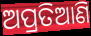
ଅପ୍ରତିଆଣି